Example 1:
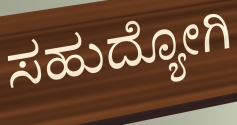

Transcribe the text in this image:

ಸಹುದ್ಯೋಗಿ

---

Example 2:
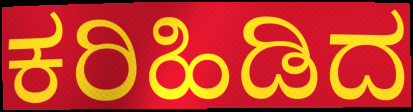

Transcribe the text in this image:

ಕರಿಹಿಡಿದ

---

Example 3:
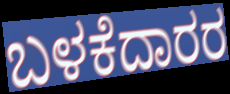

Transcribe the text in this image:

ಬಳಕೆದಾರರ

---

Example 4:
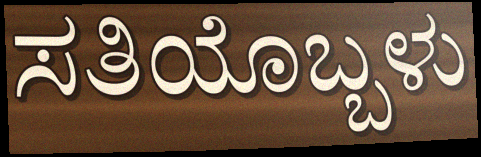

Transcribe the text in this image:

ಸತಿಯೊಬ್ಬಳು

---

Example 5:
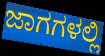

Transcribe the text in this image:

ಜಾಗಗಳಲ್ಲಿ